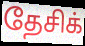
தேசிக்